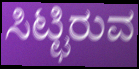
ಸಿಟ್ಟಿರುವ